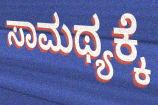
ಸಾಮಥ್ಯಕ್ಕೆ